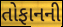
તોફાનની